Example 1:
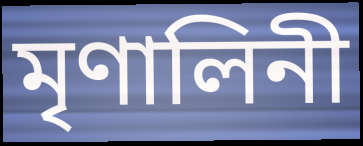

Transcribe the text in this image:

মৃণালিনী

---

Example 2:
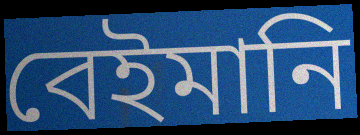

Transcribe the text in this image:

বেইমানি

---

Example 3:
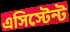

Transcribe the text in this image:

এসিস্টেন্ট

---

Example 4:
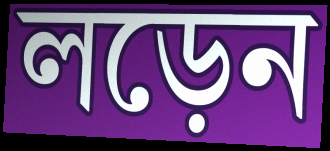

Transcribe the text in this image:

লড়েন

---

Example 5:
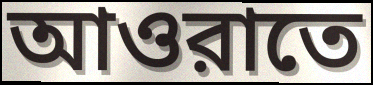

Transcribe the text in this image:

আওরাতে